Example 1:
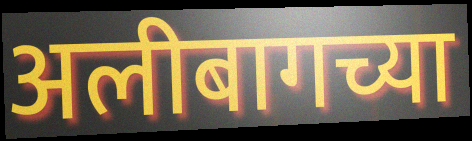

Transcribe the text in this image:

अलीबागच्या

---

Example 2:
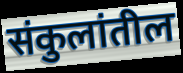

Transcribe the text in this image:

संकुलांतील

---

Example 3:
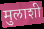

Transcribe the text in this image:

मुलाशी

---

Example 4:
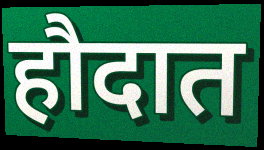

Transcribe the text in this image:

हौदात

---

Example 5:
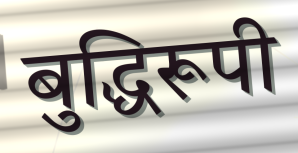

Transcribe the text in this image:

बुद्धिरूपी